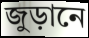
জুড়ানে